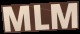
MLM